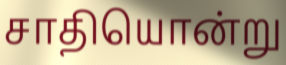
சாதியொன்று